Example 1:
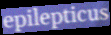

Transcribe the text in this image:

epilepticus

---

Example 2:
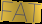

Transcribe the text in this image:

FAT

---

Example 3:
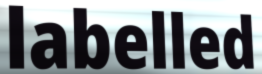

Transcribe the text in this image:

labelled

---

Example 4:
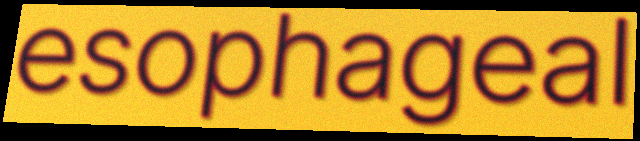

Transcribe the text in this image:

esophageal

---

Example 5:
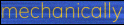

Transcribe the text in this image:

mechanically